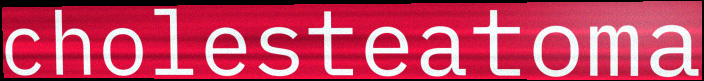
cholesteatoma